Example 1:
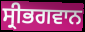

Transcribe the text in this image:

ਸ੍ਰੀਭਗਵਾਨ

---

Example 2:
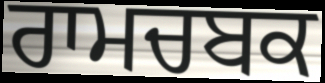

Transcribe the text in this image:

ਰਾਮਚਬਕ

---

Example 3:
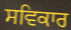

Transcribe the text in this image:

ਸਵਿਕਾਰ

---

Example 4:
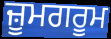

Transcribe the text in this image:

ਜ਼ੂਮਗਰੂਮ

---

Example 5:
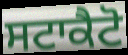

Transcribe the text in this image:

ਸਟਾਕੈਟੋ